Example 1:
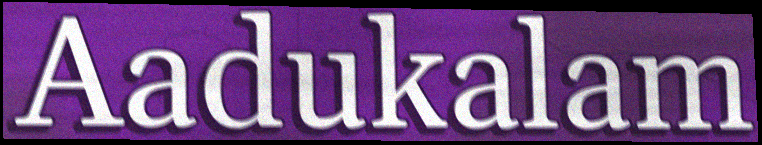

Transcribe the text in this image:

Aadukalam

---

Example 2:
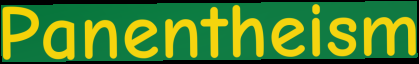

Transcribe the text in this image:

Panentheism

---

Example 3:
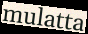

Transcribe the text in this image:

mulatta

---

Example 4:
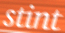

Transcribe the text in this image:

stint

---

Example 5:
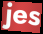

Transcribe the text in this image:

jes